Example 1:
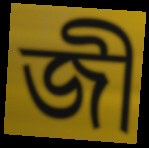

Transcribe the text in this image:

জী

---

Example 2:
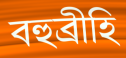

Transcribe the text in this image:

বহুব্ৰীহি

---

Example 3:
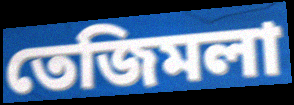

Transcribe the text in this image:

তেজিমলা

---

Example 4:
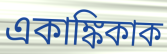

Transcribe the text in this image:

একাঙ্কিকাক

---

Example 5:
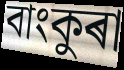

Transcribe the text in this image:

বাংকুৰা